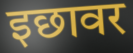
इछावर